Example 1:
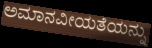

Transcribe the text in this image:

ಅಮಾನವೀಯತೆಯನ್ನು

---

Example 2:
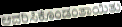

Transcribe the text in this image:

ಆವರಿಸಿಕೊಂಡಂತಾಯಿತು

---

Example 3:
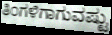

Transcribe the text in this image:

ತಿಂಗಳಿಗಾಗುವಷ್ಟು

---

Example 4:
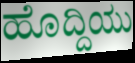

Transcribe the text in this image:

ಹೊದ್ದಿಯು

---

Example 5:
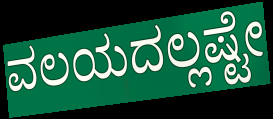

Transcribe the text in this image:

ವಲಯದಲ್ಲಷ್ಟೇ